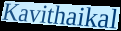
Kavithaikal